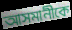
আসমানীকে